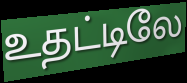
உதட்டிலே